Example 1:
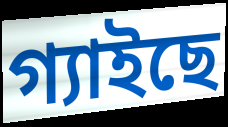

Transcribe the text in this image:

গ্যাইছে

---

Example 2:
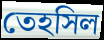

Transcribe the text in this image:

তেহসিল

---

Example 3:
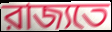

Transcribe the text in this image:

রাজ্যতে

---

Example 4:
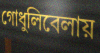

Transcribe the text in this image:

গোধুলিবেলায়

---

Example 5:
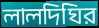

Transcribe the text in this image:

লালদিঘির